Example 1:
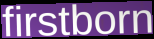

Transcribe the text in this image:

firstborn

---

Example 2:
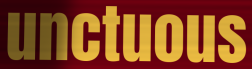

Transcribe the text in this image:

unctuous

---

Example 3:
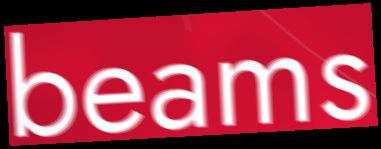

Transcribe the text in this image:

beams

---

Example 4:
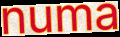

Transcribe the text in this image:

numa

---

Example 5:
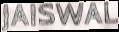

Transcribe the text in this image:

JAISWAL